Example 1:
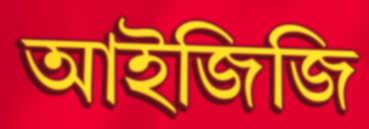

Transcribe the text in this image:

আইজিজি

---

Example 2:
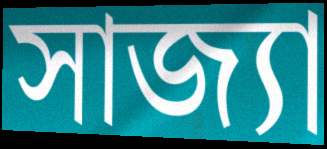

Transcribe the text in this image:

সাজ্যা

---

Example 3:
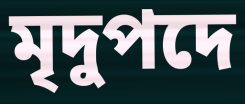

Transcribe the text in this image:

মৃদুপদে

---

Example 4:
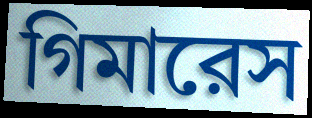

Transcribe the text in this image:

গিমারেস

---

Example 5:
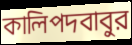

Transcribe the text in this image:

কালিপদবাবুর